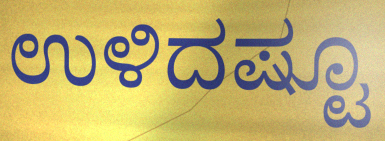
ಉಳಿದಷ್ಟೂ